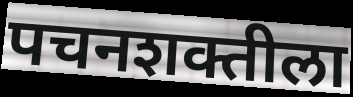
पचनशक्तीला